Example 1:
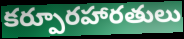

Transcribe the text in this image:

కర్పూరహారతులు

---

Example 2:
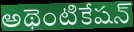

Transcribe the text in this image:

అథెంటికేషన్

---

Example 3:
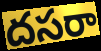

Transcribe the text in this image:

దసరా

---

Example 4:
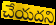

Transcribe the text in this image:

చేయదని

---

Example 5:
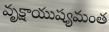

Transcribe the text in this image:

వృక్షాయుష్యమంత